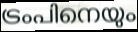
ട്രംപിനെയും